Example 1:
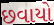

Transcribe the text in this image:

છવાયો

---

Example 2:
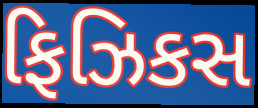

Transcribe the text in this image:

ફિઝિકસ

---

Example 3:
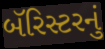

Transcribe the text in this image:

બૅરિસ્ટરનું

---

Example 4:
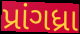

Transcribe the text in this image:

પ્રાંગધ્રા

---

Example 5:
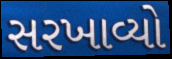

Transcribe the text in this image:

સરખાવ્યો